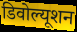
डिवोल्यूशन